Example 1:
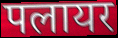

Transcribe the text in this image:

पलायर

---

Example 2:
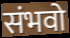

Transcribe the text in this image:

संभवो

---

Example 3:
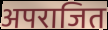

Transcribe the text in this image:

अपराजित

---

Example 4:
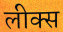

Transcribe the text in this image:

लीक्स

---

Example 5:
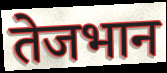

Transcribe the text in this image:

तेजभान